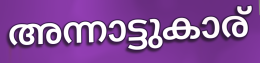
അന്നാട്ടുകാര്